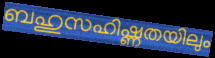
ബഹുസഹിഷ്ണതയിലും